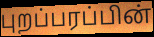
புறப்பரப்பின்